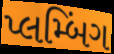
પ્લમ્બિંગ